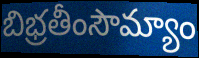
బిభ్రతీంసౌమ్యాం